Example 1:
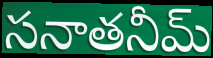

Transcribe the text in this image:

సనాతనీమ్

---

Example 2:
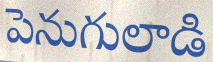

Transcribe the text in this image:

పెనుగులాడి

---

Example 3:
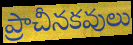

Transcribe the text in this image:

ప్రాచీనకవులు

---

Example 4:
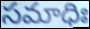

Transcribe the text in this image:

సమాధిః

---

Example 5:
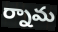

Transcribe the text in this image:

ర్నామ